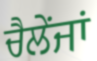
ਚੈਲੇਂਜਾਂ